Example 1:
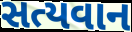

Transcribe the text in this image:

સત્યવાન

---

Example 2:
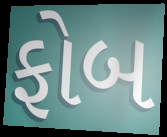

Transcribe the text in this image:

ફોબ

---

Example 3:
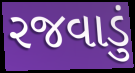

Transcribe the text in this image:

રજવાડું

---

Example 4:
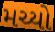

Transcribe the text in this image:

મચ્યો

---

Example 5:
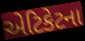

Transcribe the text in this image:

એટિકેટના